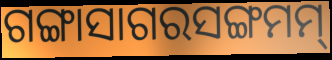
ଗଙ୍ଗାସାଗରସଙ୍ଗମମ୍